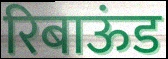
रिबाऊंड